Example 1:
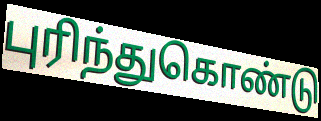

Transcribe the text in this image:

புரிந்துகொண்டு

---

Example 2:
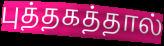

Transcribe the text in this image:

புத்தகத்தால்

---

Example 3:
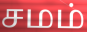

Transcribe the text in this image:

சமம்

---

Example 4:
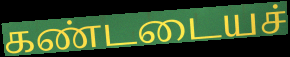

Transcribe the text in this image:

கண்டடையச்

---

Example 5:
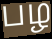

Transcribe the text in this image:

பழ